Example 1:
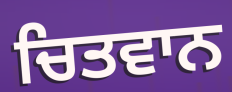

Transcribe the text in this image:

ਚਿਤਵਾਨ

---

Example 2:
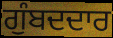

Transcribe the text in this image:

ਗੁੰਬਦਦਾਰ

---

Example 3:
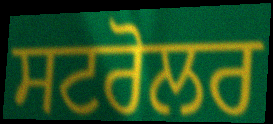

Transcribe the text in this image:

ਸਟਰੋਲਰ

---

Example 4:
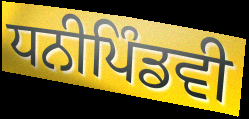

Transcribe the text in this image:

ਧਨੀਪਿੰਡਵੀ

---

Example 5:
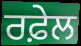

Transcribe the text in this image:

ਰਫ਼ੇਲ